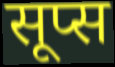
सूप्स